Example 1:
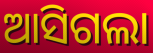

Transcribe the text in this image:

ଆସିଗଲା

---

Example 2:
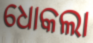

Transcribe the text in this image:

ଧୋକଲା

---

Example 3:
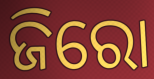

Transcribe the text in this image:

ଜିରୋ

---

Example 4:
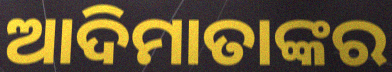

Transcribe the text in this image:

ଆଦିମାତାଙ୍କର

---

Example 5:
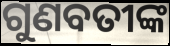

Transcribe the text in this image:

ଗୁଣବତୀଙ୍କ